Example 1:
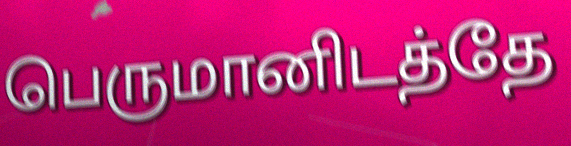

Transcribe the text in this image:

பெருமானிடத்தே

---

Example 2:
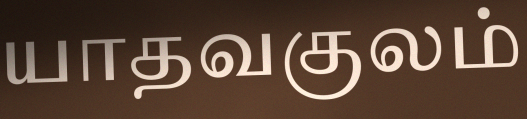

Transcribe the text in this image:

யாதவகுலம்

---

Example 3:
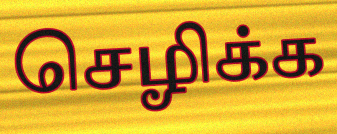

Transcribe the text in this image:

செழிக்க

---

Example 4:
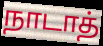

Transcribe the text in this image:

நாடாத்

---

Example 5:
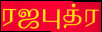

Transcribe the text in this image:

ரஜபுத்ர